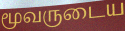
மூவருடைய